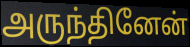
அருந்தினேன்